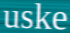
uske